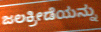
ಜಲಕ್ರೀಡೆಯನ್ನು